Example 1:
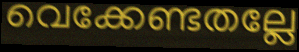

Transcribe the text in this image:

വെക്കേണ്ടതല്ലേ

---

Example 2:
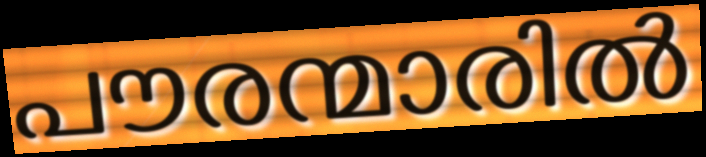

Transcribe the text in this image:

പൗരന്മാരിൽ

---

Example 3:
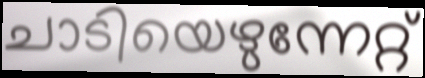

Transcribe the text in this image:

ചാടിയെഴുന്നേറ്റ്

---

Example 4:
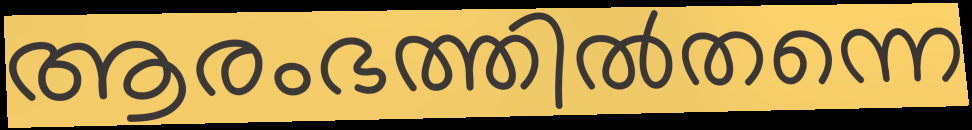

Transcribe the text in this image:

ആരംഭത്തിൽതന്നെ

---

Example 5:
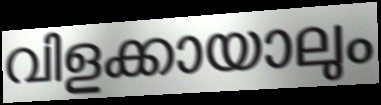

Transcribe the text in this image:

വിളക്കായാലും